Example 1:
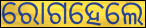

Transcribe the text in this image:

ରୋଗହେଲେ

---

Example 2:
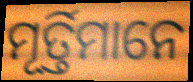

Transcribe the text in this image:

ମୂର୍ତ୍ତିମାନେ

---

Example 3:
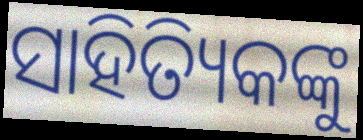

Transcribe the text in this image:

ସାହିତ୍ୟିକଙ୍କୁ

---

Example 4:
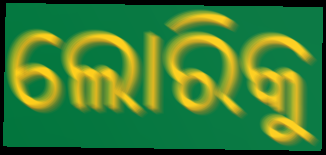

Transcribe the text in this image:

ଲୋରିକୁ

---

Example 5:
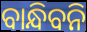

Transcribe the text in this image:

ବାନ୍ଧିବନି